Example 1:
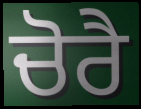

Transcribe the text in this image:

ਚੋਰੈ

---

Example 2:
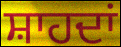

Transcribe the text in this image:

ਸ਼ਾਹਦਾਂ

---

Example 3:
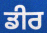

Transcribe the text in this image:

ਡੀਰ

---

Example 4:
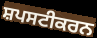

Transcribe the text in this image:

ਸ਼ਪਸਟੀਕਰਨ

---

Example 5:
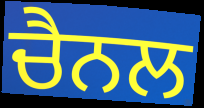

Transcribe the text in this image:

ਚੈਨਲ